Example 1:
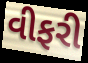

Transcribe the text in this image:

વીફરી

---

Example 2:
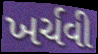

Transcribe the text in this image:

ખર્ચવી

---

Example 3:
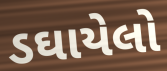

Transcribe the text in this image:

ડઘાયેલો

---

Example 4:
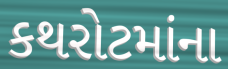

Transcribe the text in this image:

કથરોટમાંના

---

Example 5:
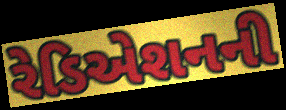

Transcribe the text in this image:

રેડિએશનની